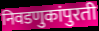
निवडणुकांपुरती